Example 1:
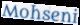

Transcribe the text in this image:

Mohseni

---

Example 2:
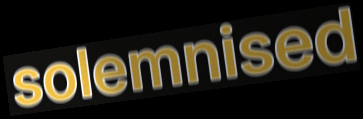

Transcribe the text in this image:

solemnised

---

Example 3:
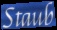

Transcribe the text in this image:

Staub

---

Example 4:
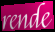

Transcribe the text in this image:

rende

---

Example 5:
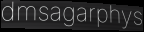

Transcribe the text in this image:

dmsagarphys